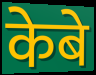
केबे